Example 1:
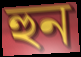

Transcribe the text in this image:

হুন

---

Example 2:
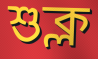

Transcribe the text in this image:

শুক্ল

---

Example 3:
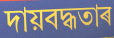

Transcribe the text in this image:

দায়বদ্ধতাৰ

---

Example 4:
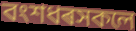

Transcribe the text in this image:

বংশধৰসকলে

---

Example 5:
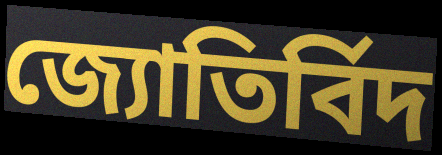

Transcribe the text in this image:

জ্যোতিৰ্বিদ